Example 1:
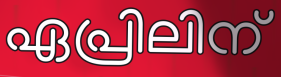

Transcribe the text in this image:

ഏപ്രിലിന്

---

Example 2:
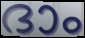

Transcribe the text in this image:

ദാം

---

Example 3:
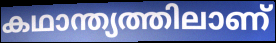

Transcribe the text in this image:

കഥാന്ത്യത്തിലാണ്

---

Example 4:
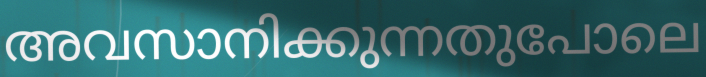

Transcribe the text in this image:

അവസാനിക്കുന്നതുപോലെ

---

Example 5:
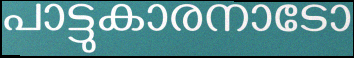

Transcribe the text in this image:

പാട്ടുകാരനാടോ